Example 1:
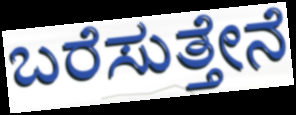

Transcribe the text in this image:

ಬರೆಸುತ್ತೇನೆ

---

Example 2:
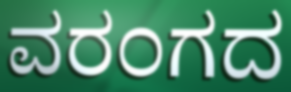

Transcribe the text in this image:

ವರಂಗದ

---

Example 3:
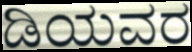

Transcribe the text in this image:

ಡಿಯವರ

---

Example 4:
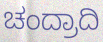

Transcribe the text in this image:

ಚಂದ್ರಾದಿ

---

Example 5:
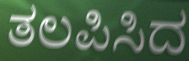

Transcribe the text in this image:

ತಲಪಿಸಿದ